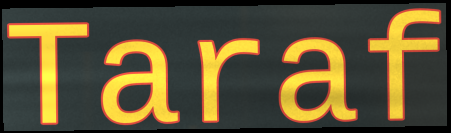
Taraf